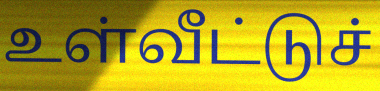
உள்வீட்டுச்